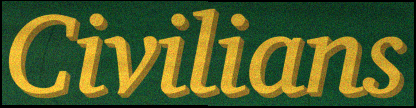
Civilians